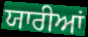
ਯਾਰੀਆਂ